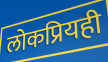
लोकप्रियही